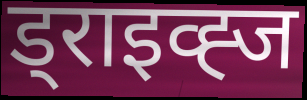
ड्राइव्ह्ज